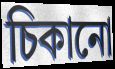
চিকানো